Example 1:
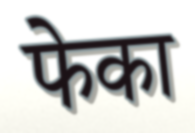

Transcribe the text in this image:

फेका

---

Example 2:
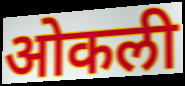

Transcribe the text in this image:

ओकली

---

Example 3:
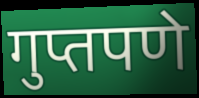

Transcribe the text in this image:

गुप्तपणे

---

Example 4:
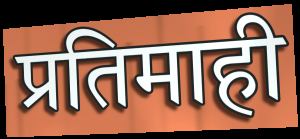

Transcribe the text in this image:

प्रतिमाही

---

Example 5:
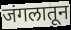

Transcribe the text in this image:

जंगलातून